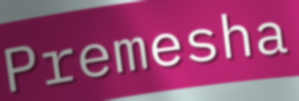
Premesha